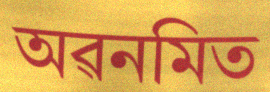
অৱনমিত